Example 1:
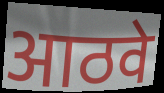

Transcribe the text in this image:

आठवे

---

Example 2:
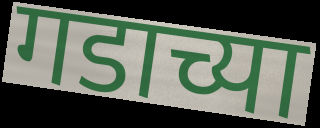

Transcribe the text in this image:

गडाच्या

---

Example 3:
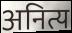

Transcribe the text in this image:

अनित्य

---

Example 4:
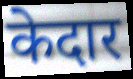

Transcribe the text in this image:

केदार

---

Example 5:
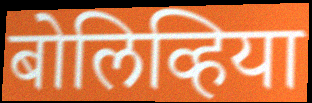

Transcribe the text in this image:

बोलिव्हिया